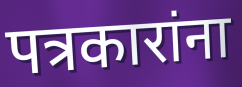
पत्रकारांना